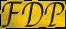
FDP